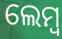
ଲେମ୍ବ